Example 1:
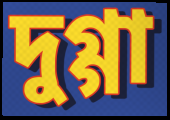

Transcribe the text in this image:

দুগ্গা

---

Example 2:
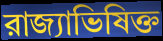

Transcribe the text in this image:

রাজ্যাভিষিক্ত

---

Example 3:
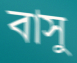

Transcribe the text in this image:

বাসু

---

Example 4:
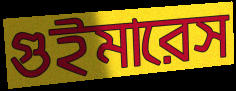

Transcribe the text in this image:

গুইমারেস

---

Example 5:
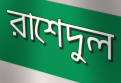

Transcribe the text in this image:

রাশেদুল